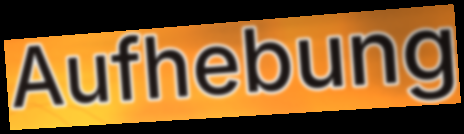
Aufhebung